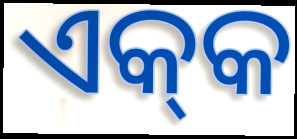
ଏକ୍‍କ